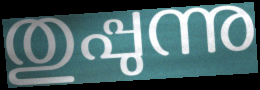
തുപ്പുന്നു